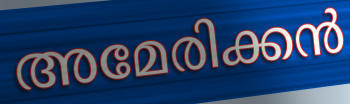
അമേരിക്കൻ